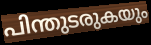
പിന്തുടരുകയും